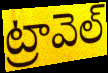
ట్రావెల్